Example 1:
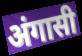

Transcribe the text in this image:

अंगासी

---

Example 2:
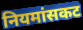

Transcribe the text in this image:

नियमांसकट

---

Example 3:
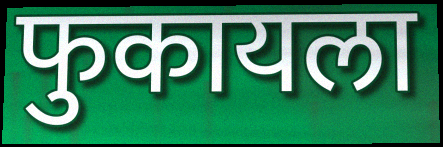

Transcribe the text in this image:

फुकायला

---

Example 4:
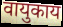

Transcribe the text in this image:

वायुकाय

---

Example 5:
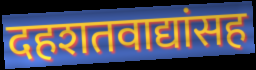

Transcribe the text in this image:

दहशतवाद्यांसह